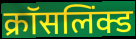
क्रॉसलिंक्ड